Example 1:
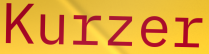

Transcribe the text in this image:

Kurzer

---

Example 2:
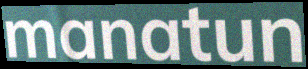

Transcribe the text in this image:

manatun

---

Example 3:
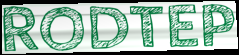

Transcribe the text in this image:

RODTEP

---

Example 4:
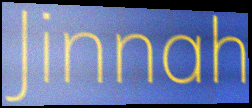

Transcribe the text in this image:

Jinnah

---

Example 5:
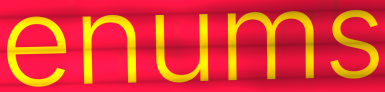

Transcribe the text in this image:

enums